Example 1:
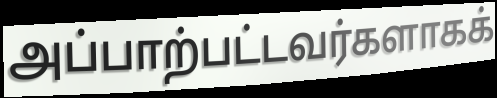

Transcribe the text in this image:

அப்பாற்பட்டவர்களாகக்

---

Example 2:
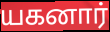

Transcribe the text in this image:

யகனார்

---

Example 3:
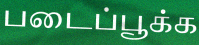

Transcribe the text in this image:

படைப்பூக்க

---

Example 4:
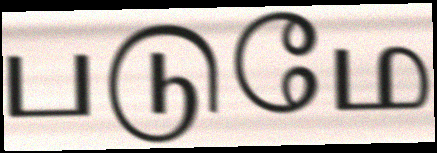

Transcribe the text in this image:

படுமே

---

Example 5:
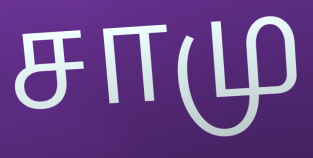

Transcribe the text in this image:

சாமு